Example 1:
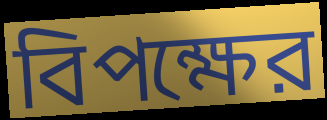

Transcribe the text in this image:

বিপক্ষের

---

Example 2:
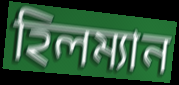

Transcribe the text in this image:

হিলম্যান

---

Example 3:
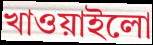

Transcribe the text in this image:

খাওয়াইলো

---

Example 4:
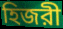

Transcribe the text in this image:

হিজরী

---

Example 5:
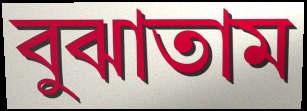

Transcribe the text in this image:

বুঝাতাম